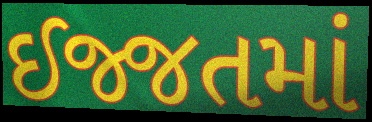
ઈજ્જતમાં